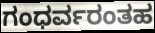
ಗಂಧರ್ವರಂತಹ